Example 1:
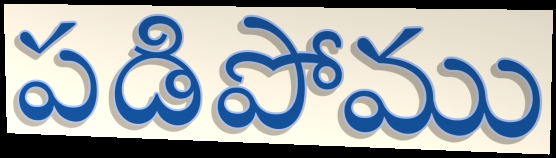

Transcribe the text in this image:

పడిపోము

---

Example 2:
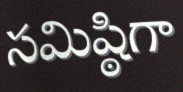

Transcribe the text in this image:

సమిష్ఠిగా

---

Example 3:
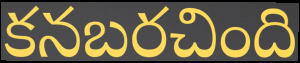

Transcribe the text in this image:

కనబరచింది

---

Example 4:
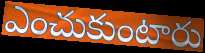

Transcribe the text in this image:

ఎంచుకుంటారు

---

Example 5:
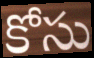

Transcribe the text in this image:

కోసు